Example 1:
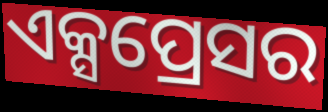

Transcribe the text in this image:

ଏକ୍ସପ୍ରେସର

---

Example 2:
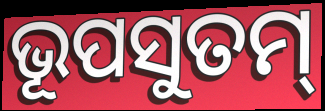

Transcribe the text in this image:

ଭୂପସୁତମ୍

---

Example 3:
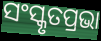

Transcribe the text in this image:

ସଂସ୍କୃତପ୍ରଭା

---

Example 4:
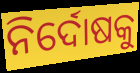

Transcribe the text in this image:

ନିର୍ଦୋଷକୁ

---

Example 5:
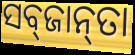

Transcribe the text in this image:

ସବ୍‌ଜାନ୍‌ତା